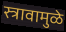
स्त्रावामुळे